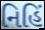
નિહિં